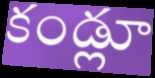
కండ్లూ